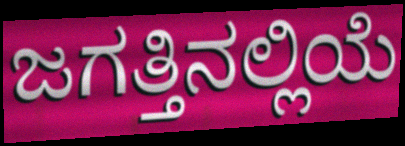
ಜಗತ್ತಿನಲ್ಲಿಯೆ